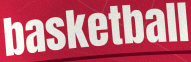
basketball